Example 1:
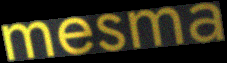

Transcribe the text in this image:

mesma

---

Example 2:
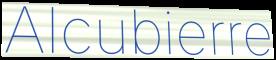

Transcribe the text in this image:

Alcubierre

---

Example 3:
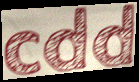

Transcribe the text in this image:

cdd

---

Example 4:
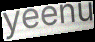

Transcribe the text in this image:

yeenu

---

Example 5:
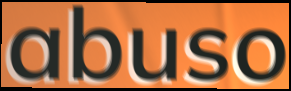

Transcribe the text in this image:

abuso